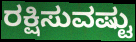
ರಕ್ಷಿಸುವಷ್ಟು